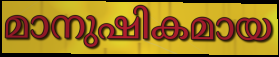
മാനുഷികമായ